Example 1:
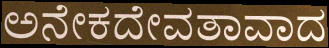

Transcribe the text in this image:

ಅನೇಕದೇವತಾವಾದ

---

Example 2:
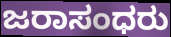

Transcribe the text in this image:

ಜರಾಸಂಧರು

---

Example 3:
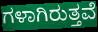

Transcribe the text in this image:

ಗಳಾಗಿರುತ್ತವೆ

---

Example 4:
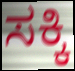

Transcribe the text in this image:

ಸಕ್ಕಿ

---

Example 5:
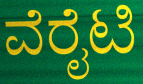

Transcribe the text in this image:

ವೆರೈಟಿ